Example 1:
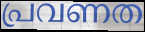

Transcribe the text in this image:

പ്രവണത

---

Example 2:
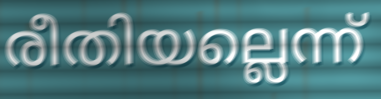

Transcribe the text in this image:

രീതിയല്ലെന്ന്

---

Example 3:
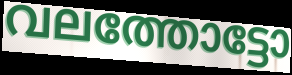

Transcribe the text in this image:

വലത്തോട്ടോ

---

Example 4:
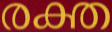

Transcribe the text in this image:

രക്ത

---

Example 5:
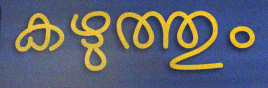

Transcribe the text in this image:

കഴുത്തും